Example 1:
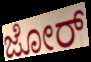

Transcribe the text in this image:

ಜೋರ್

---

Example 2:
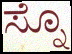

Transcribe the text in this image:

ಸ್ನೊ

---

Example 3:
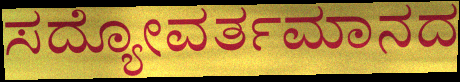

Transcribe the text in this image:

ಸದ್ಯೋವರ್ತಮಾನದ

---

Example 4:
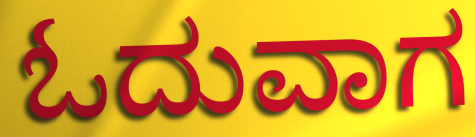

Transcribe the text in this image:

ಓದುವಾಗ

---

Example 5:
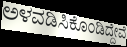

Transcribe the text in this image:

ಅಳವಡಿಸಿಕೊಂಡಿದ್ದೇವೆ